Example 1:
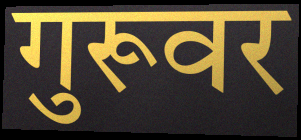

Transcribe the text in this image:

गुरूवर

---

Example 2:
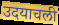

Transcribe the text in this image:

उदयाचली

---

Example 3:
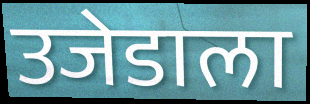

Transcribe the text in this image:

उजेडाला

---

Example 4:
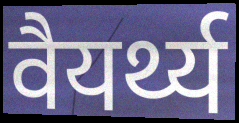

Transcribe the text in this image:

वैयर्थ्य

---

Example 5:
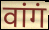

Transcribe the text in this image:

वांगं